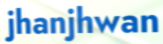
jhanjhwan